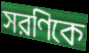
সরণিকে